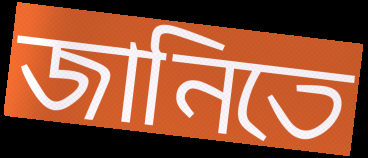
জানিতে